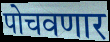
पोचवणार